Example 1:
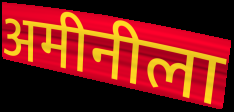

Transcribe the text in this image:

अमीनीला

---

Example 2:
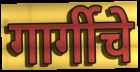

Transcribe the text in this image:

गार्गीचे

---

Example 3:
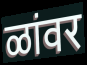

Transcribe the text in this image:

ळांवर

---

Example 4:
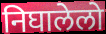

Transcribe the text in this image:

निघालेलो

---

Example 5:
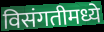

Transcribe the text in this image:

विसंगतीमध्ये